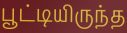
பூட்டியிருந்த